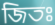
জিতঃ